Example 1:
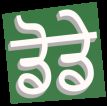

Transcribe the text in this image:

ਡੋਡੇ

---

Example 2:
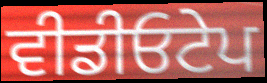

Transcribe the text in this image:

ਵੀਡੀਓਟੇਪ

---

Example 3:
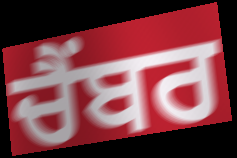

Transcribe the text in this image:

ਚੈਂਬਰ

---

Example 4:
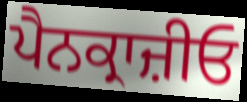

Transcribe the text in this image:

ਪੈਨਕ੍ਰਾਜ਼ੀਓ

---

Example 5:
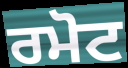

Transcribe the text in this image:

ਰਮੋਟ